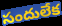
సందులేక